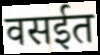
वसईत